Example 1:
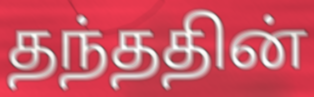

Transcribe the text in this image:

தந்ததின்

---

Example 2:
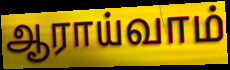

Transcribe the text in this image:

ஆராய்வாம்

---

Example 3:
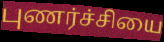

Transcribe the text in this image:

புணர்ச்சியை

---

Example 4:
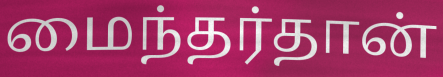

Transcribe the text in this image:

மைந்தர்தான்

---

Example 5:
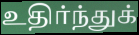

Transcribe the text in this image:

உதிர்ந்துக்